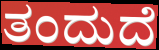
ತಂದುದೆ